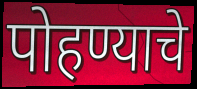
पोहण्याचे